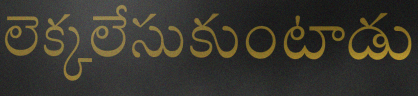
లెక్కలేసుకుంటాడు